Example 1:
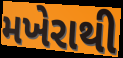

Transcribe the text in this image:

મખેરાથી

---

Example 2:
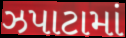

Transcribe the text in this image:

ઝપાટામાં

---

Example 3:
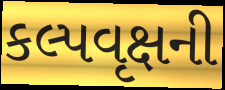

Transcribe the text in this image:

કલ્પવૃક્ષની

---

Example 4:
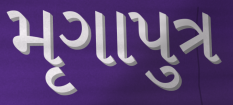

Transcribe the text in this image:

મૃગાપુત્ર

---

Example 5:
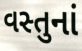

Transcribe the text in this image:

વસ્તુનાં